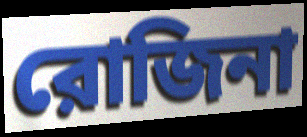
রোজিনা